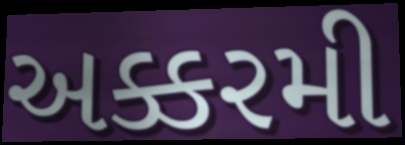
અક્કરમી